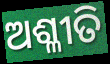
ଅଶ୍ଳୀତି